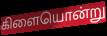
கிளையொன்று